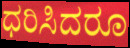
ಧರಿಸಿದರೂ